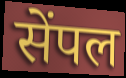
सेंपल